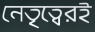
নেতৃত্বেরই